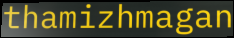
thamizhmagan